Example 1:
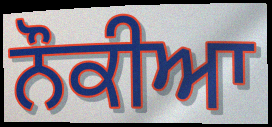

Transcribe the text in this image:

ਨੌਕੀਆ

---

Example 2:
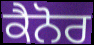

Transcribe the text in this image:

ਕੈਨੋਰ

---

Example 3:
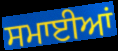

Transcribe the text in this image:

ਸਮਾਈਆਂ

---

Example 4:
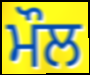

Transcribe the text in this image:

ਮੌਲ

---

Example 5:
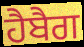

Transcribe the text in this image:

ਹੈਬੈਗ